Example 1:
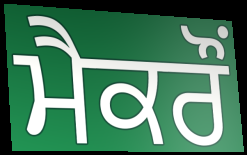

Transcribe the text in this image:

ਮੈਕਰੌਂ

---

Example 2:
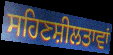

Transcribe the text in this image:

ਸਹਿਣਸ਼ੀਲਤਾਵਾਂ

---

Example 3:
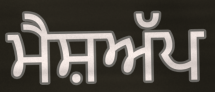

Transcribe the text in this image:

ਮੈਸ਼ਅੱਪ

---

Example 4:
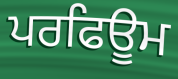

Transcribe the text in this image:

ਪਰਫਿਊਮ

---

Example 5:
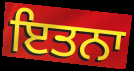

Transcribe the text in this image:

ਇਤਨਾ